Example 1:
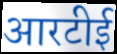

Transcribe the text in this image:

आरटीई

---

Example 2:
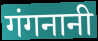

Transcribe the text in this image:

गंगनानी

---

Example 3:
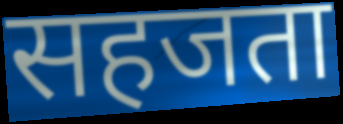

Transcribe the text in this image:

सहजता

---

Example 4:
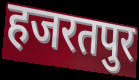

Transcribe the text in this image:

हजरतपुर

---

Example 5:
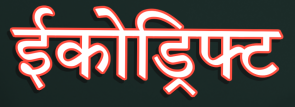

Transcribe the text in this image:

ईकोड्रिफ्ट